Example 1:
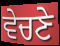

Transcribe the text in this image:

ਵੇਚਣੇ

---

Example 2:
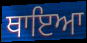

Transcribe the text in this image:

ਥਾਇਆ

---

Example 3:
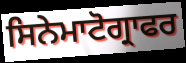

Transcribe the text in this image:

ਸਿਨੇਮਾਟੋਗ੍ਰਾਫਰ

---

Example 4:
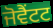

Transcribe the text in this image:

ਜੋਵੈਂਟਟ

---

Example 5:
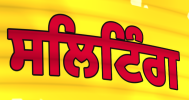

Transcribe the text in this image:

ਸਲਿਟਿੰਗ